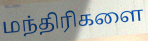
மந்திரிகளை